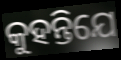
କୁହନ୍ତିଯେ